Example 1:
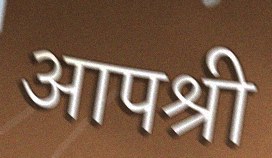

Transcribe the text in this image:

आपश्री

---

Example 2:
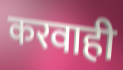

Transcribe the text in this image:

करवाही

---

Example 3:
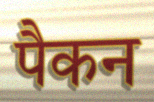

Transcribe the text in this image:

पैकन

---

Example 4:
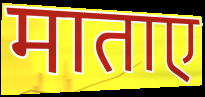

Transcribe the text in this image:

माताए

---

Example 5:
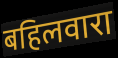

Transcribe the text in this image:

बहिलवारा